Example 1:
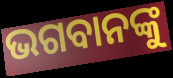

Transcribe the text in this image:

ଭଗବାନଙ୍କୁ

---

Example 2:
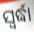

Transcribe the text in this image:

ସ୍ଵର୍ଦ୍ଧା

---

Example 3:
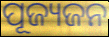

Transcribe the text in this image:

ପୂଜ୍ୟଜନ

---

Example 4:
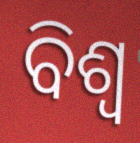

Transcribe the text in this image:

ବିଶ୍ୱ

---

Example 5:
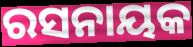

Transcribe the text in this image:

ରସନାୟକ